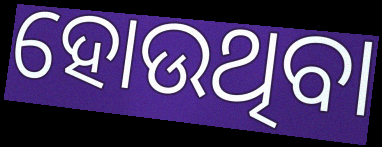
ହୋଉଥିବା